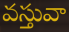
వస్తువా